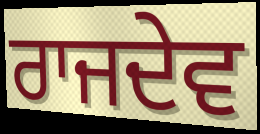
ਰਾਜਦੇਵ